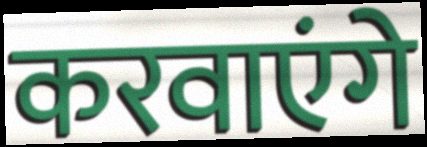
करवाएंगे